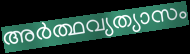
അർത്ഥവ്യത്യാസം